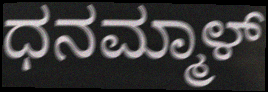
ಧನಮ್ಮಾಳ್